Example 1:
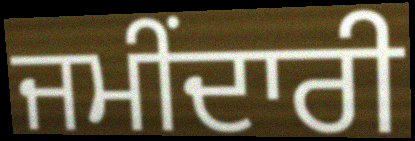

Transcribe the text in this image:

ਜਮੀਂਦਾਰੀ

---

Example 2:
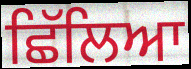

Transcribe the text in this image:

ਛਿੱਲਿਆ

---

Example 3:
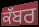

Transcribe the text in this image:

ਕੱਬਰ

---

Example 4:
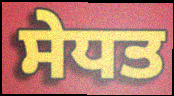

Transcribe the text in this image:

ਸੇਧਤ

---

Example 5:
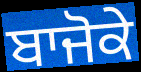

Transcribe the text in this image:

ਬਾਜੋਕੇ